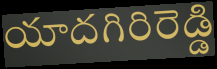
యాదగిరిరెడ్డి